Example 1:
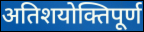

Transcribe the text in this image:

अतिशयोक्तिपूर्ण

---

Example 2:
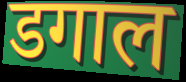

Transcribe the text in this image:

डगाल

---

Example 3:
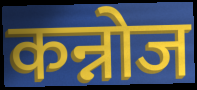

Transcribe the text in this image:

कन्नोज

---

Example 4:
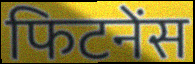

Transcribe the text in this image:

फिटनेंस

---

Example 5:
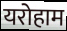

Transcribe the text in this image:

यरोहाम